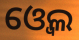
ଓ୍ବେଲ